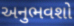
અનુભવશો